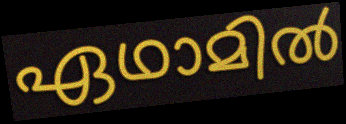
ഏഥാമിൽ